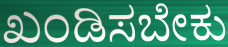
ಖಂಡಿಸಬೇಕು